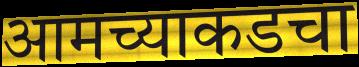
आमच्याकडचा